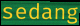
sedang